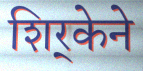
शिर्केने